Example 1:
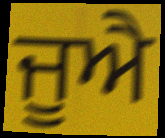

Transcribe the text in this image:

ਜੂਐ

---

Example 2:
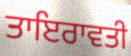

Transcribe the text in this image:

ਤਾਇਰਾਵਤੀ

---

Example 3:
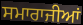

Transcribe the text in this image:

ਸਮਾਰਾਜੀਆਂ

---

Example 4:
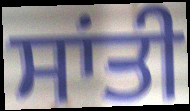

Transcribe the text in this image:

ਸਾਂਤੀ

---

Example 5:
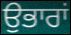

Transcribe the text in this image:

ਉਭਾਰਾਂ